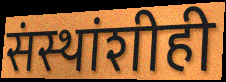
संस्थांशीही